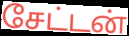
சேட்டன்